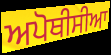
ਅਪੋਥੀਸੀਆ